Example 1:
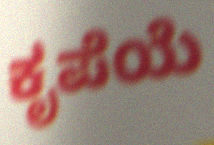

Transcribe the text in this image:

ಕೃಪೆಯೆ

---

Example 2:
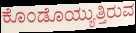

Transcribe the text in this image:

ಕೊಂಡೊಯ್ಯುತ್ತಿರುವ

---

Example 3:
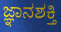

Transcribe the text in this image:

ಜ್ಞಾನಶಕ್ತಿ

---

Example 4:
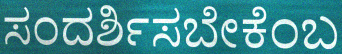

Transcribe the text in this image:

ಸಂದರ್ಶಿಸಬೇಕೆಂಬ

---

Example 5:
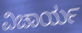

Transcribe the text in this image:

ವಿಚಾರ್ಯ